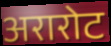
अरारोट